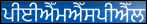
ਪੀਈਐੱਮਐੱਸਪੀਐੱਲ